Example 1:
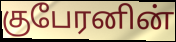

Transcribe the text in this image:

குபேரனின்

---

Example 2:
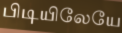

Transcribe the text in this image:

பிடியிலேயே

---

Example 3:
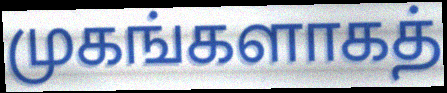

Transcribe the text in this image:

முகங்களாகத்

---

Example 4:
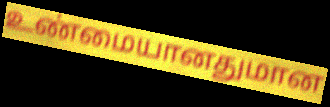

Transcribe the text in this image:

உண்மையானதுமான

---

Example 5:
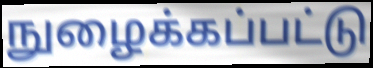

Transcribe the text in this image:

நுழைக்கப்பட்டு